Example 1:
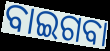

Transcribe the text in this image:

ବାଇଗବା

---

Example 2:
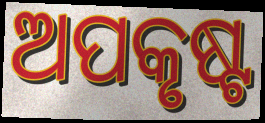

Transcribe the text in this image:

ଅପକୃଷ୍ଟ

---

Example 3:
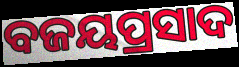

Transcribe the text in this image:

ବଜୟପ୍ରସାଦ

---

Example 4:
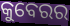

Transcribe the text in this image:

କୁବେରର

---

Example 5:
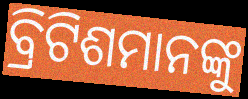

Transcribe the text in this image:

ବ୍ରିଟିଶମାନଙ୍କୁ